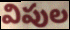
విపుల